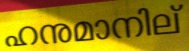
ഹനുമാനില്